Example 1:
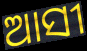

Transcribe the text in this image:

ଆସୀ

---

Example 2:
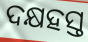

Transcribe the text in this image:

ଦକ୍ଷହସ୍ତ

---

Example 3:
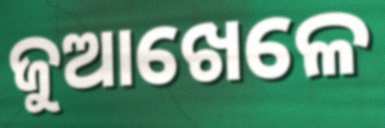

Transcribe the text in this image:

ଜୁଆଖେଳେ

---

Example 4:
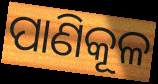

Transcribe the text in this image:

ପାଣିକୂଳ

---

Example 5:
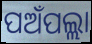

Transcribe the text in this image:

ପଅଁପଲ୍ଲା